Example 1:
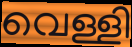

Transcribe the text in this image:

വെള്ളി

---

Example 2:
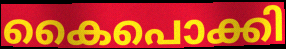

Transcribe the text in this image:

കൈപൊക്കി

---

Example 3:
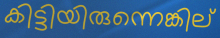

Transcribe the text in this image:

കിട്ടിയിരുന്നെങ്കില്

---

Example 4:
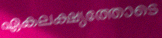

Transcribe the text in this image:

ഏകലക്ഷ്യത്തോടെ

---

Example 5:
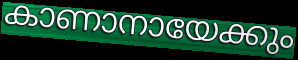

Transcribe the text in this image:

കാണാനായേക്കും